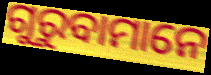
ଗୁରୁବାମାନେ